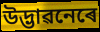
উদ্ভাৱনেৰে